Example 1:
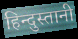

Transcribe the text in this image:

हिन्दुस्तानी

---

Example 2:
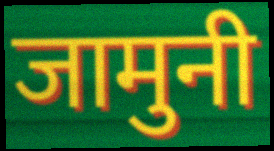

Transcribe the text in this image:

जामुनी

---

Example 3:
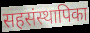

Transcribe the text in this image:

सहसंस्थापिका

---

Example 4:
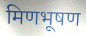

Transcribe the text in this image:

मिणभूषण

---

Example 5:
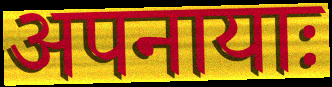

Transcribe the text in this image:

अपनायाः